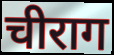
चीराग